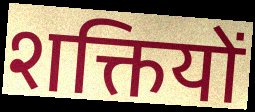
शक्तियों